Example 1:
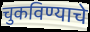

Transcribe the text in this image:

चुकविण्याचे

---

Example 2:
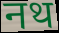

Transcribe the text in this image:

नथ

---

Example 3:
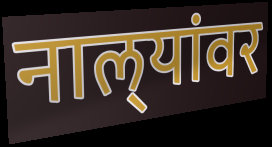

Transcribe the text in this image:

नाल्यांवर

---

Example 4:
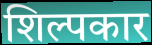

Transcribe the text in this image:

शिल्पकार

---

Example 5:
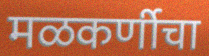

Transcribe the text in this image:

मळकर्णीचा